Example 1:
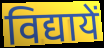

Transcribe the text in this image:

विद्यायें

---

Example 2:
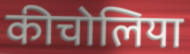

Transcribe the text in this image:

कीचोलिया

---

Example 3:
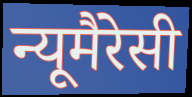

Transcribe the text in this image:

न्यूमैरेसी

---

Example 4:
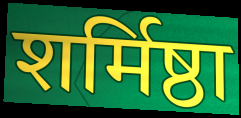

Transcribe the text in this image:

शर्मिष्ठा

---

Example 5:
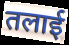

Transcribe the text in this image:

तलाई